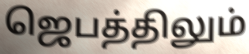
ஜெபத்திலும்